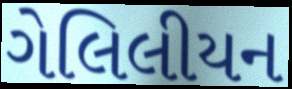
ગેલિલીયન